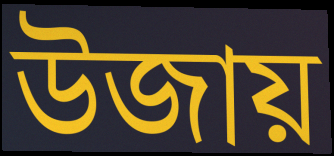
উজায়